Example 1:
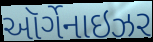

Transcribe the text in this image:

ઑર્ગેનાઇઝર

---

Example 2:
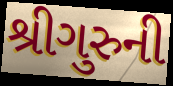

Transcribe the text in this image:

શ્રીગુરુની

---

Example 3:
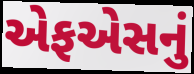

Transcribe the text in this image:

એફએસનું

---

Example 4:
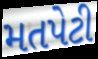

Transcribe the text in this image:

મતપેટી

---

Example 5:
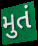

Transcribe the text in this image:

મુતં